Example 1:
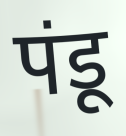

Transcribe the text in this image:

पंडू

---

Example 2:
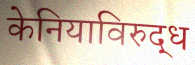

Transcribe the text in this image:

केनियाविरुद्ध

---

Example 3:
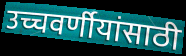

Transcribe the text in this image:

उच्चवर्णीयांसाठी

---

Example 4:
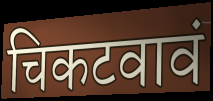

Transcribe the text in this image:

चिकटवावं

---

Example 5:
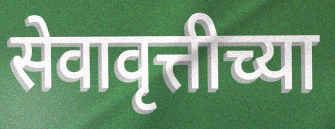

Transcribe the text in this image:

सेवावृत्तीच्या